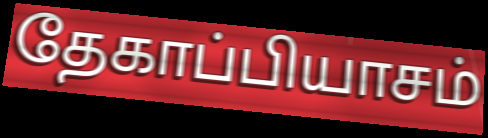
தேகாப்பியாசம்